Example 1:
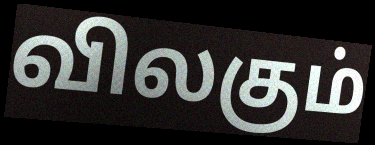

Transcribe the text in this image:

விலகும்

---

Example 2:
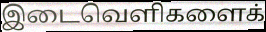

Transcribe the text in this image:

இடைவெளிகளைக்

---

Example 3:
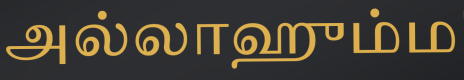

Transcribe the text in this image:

அல்லாஹும்ம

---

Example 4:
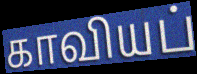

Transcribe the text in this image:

காவியப்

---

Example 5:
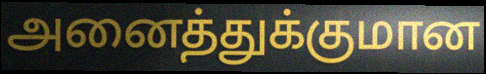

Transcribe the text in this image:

அனைத்துக்குமான